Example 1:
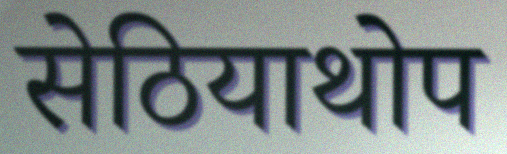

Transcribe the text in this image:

सेठियाथोप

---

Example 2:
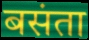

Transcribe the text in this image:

बसंता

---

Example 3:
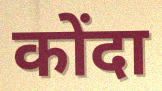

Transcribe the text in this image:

कोंदा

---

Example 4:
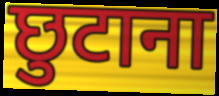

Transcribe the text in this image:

छुटाना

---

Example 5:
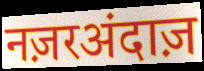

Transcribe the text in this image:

नज़रअंदाज़